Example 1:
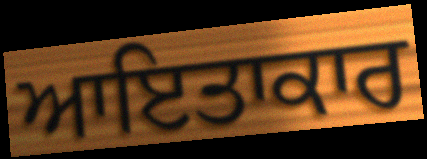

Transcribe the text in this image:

ਆਇਤਾਕਾਰ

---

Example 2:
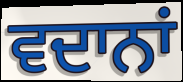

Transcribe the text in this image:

ਵਦਾਨਾਂ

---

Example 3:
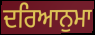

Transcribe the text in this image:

ਦਰਿਆਨੁਮਾ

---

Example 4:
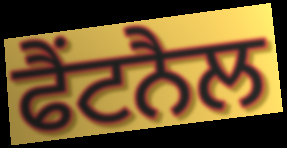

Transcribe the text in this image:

ਫੈਂਟਨੈਲ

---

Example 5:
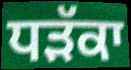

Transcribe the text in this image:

ਧੜੱਕਾ